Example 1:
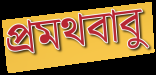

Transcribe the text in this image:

প্রমথবাবু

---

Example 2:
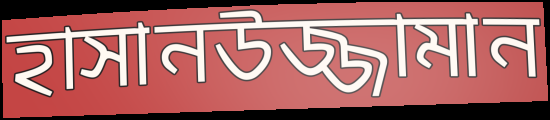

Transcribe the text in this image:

হাসানউজ্জামান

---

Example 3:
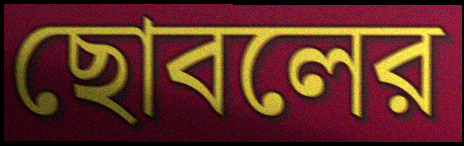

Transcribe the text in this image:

ছোবলের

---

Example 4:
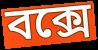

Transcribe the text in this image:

বক্সে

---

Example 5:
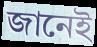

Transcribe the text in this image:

জানেই